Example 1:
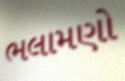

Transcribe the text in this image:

ભલામણો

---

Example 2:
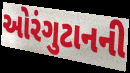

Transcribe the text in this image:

ઓરંગુટાનની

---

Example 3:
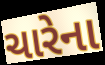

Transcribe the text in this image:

ચારેના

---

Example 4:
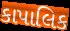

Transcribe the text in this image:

કાપાલિક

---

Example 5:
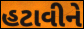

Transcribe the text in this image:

હટાવીને